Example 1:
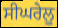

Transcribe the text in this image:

ਸੀਘਰੇਲੂ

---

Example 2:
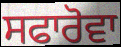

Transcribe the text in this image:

ਸਫਾਰੋਵਾ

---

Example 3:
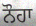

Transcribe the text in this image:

ਨੌਹਾ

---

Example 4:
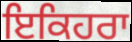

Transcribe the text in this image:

ਇਕਿਹਰਾ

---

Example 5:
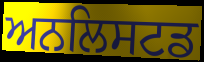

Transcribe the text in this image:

ਅਨਲਿਸਟਡ